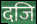
दजि